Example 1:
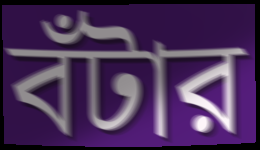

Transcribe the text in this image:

বঁটার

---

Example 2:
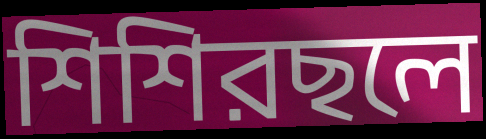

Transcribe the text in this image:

শিশিরছলে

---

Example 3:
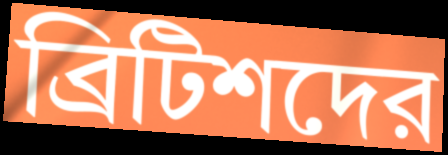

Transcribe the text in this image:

ব্রিটিশদের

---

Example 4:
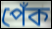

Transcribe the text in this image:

পেঁক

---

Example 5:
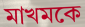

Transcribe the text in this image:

মাখমকে